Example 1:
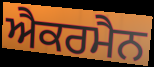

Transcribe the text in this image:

ਐਕਰਮੈਨ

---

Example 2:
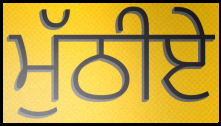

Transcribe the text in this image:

ਮੁੱਠੀਏ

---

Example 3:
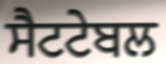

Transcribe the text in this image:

ਸੈਟਟੇਬਲ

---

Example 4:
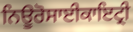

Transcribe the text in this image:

ਨਿਊਰੋਸਾਈਕਾਇਟ੍ਰੀ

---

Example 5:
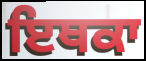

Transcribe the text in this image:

ਇਥਕਾ